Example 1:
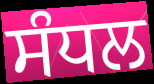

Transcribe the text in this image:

ਸੰਧਲ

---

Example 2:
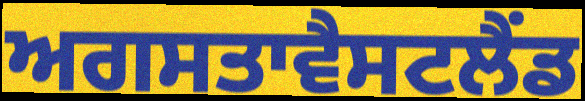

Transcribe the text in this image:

ਅਗਸਤਾਵੈਸਟਲੈਂਡ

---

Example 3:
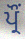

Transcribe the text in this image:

ਪ੍ਰੌਂ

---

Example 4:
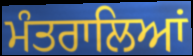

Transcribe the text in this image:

ਮੰਤਰਾਲਿਆਂ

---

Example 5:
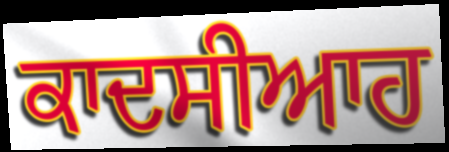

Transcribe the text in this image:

ਕਾਦਸੀਆਹ